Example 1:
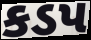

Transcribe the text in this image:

કડપ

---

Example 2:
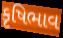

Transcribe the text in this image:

કૃષિભાવ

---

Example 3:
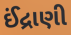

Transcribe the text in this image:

ઈંદ્રાણી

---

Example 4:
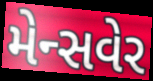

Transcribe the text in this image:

મેન્સવેર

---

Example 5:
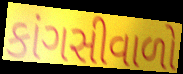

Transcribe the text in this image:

કાંગસીવાળો